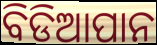
ବିଡିଆପାନ